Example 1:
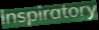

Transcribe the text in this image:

Inspiratory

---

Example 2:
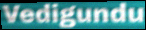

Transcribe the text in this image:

Vedigundu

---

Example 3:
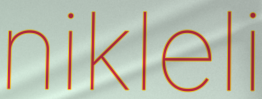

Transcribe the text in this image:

nikleli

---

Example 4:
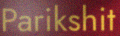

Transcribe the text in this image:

Parikshit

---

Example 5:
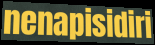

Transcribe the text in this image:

nenapisidiri